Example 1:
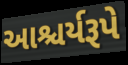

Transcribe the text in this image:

આશ્ચર્યરૂપે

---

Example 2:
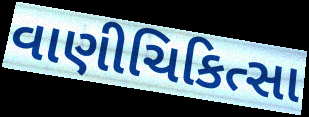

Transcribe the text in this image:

વાણીચિકિત્સા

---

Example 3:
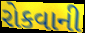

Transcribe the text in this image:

રોકવાની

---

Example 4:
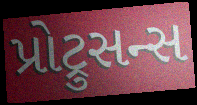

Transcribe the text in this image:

પ્રોટ્રુસન્સ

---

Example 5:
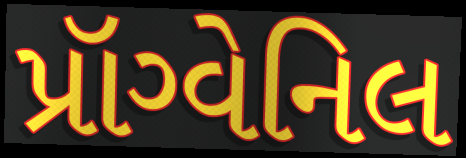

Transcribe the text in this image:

પ્રૉગ્વેનિલ